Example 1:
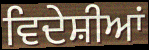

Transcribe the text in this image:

ਵਿਦੇਸ਼ੀਆਂ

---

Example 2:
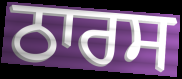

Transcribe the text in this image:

ਠਾਰਸ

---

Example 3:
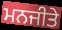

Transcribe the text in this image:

ਮਨਜੀਤੇ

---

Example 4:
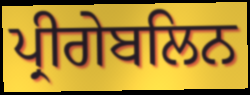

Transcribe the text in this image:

ਪ੍ਰੀਗੇਬਲਿਨ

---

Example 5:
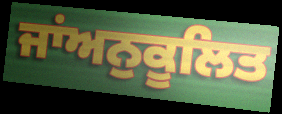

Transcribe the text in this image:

ਜਾਂਅਨੁਕੂਲਿਤ